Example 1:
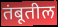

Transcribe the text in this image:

तंबूतील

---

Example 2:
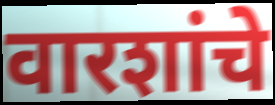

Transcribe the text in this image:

वारशांचे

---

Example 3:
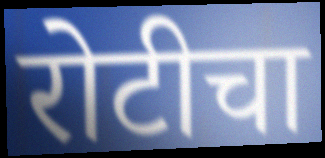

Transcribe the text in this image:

रोटीचा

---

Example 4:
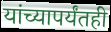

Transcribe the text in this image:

यांच्यापर्यंतही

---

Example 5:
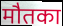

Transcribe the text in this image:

मौतका